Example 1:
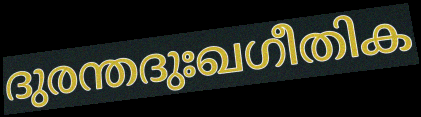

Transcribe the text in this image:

ദുരന്തദുഃഖഗീതിക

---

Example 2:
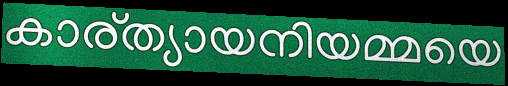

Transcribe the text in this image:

കാര്ത്യായനിയമ്മയെ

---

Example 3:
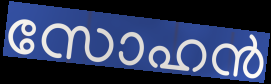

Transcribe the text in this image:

സോഹൻ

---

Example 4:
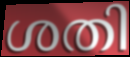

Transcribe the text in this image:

ശതി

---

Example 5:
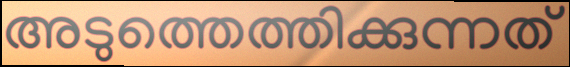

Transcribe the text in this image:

അടുത്തെത്തിക്കുന്നത്